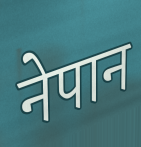
नेपान